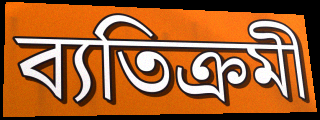
ব্যতিক্রমী